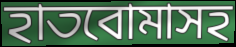
হাতবোমাসহ